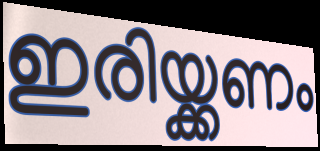
ഇരിയ്ക്കണം